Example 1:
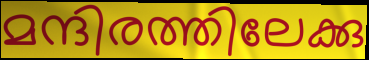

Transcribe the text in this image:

മന്ദിരത്തിലേക്കു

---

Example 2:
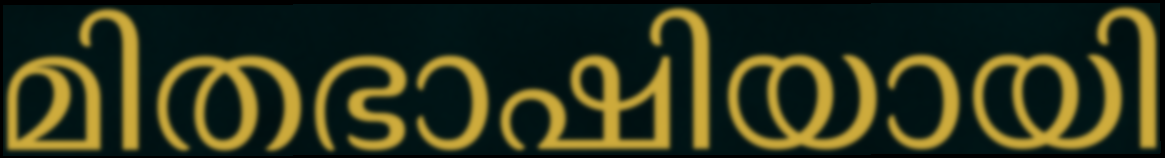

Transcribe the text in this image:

മിതഭാഷിയായി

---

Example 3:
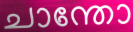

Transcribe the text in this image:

ചാന്തോ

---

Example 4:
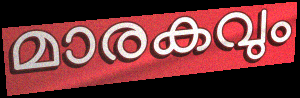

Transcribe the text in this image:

മാരകവും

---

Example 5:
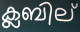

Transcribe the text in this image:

ക്ലബില്